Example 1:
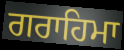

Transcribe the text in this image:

ਗਰਾਹਿਮਾ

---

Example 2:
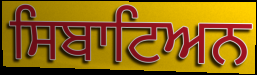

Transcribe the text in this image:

ਸਿਬਾਟਿਅਨ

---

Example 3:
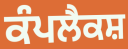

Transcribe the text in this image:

ਕੰਪਲੈਕਸ਼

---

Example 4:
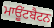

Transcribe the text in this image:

ਮਾਉੂਂਟਬੈਟਨ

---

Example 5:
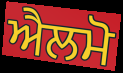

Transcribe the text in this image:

ਐਲਮੋ